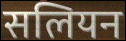
सलियन